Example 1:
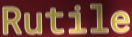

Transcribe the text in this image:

Rutile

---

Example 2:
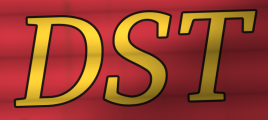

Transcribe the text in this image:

DST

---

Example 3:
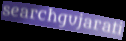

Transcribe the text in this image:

searchgujarati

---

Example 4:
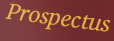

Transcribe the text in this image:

Prospectus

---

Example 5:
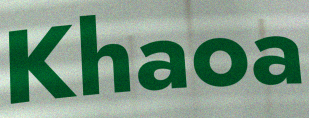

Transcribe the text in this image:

Khaoa